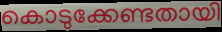
കൊടുക്കേണ്ടതായി